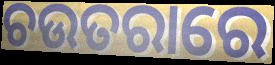
ଚଉତରାରେ